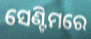
ସେଣ୍ଟିମରେ